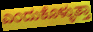
ಎಂದುಕೊಳ್ಳುತ್ತಾ